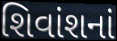
શિવાંશનાં